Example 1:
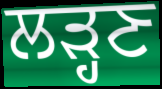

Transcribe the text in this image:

ਲੜ੍ਹਣ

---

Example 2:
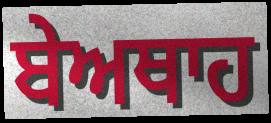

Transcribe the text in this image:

ਬੇਅਥਾਹ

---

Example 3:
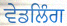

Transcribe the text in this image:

ਵੇਡਲਿੰਗ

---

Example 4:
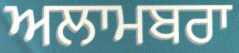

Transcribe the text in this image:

ਅਲਾਮਬਰਾ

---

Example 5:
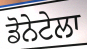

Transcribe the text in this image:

ਡੋਨੇਟੇਲਾ